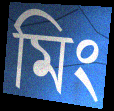
মিং